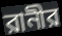
রানীর